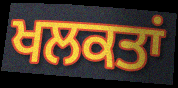
ਖਲਕਤਾਂ